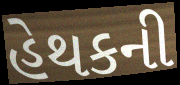
હેથકની